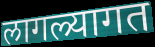
लागल्यागत